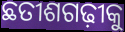
ଛତୀଶଗଢ଼ୀକୁ